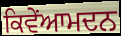
ਕਿਵੇਂਆਮਦਨ